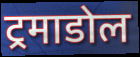
ट्रमाडोल